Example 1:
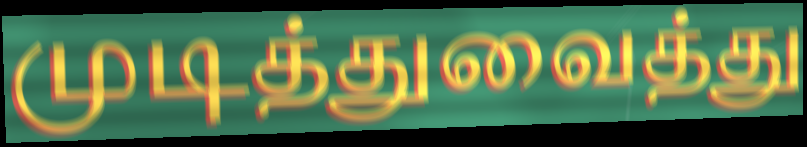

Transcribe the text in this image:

முடித்துவைத்து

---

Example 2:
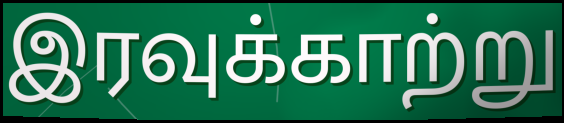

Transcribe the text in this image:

இரவுக்காற்று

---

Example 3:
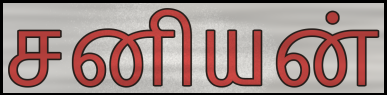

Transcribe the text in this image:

சனியன்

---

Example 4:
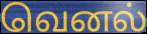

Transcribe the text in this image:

வெனல்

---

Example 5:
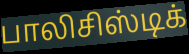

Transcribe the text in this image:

பாலிசிஸ்டிக்